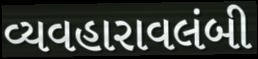
વ્યવહારાવલંબી